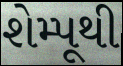
શેમ્પૂથી